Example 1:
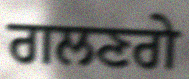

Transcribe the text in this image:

ਗਲਣਗੇ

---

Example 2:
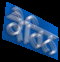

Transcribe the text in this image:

ਕੈਰਿਨ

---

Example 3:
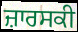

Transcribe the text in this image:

ਜ਼ਾਰਸਕੀ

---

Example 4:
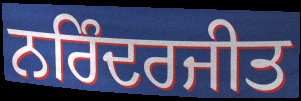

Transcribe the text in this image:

ਨਰਿੰਦਰਜੀਤ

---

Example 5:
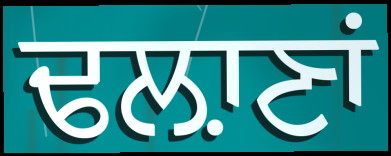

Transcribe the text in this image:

ਢਲ਼ਾਣਾਂ